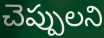
చెప్పులని